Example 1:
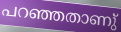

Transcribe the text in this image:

പറഞ്ഞതാണു്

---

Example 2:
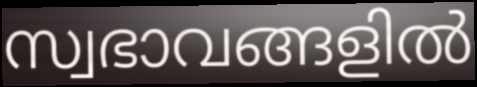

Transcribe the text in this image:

സ്വഭാവങ്ങളിൽ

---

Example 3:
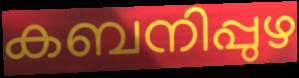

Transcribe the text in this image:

കബനിപ്പുഴ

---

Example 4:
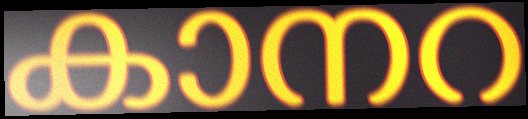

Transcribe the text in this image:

കാനറ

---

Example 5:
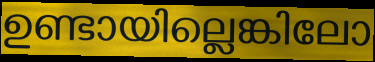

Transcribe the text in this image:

ഉണ്ടായില്ലെങ്കിലോ